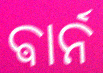
ଵାର୍ନ